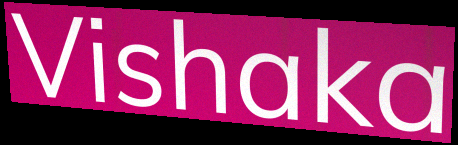
Vishaka